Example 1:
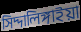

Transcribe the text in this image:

সিদ্দালিঙ্গাইয়া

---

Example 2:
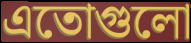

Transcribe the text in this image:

এতোগুলো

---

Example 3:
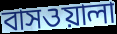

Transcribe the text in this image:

বাসওয়ালা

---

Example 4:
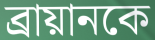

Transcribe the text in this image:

ব্রায়ানকে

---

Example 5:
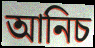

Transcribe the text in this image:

আনিচ